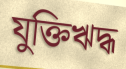
যুক্তিঋদ্ধ